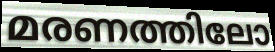
മരണത്തിലോ